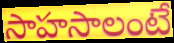
సాహసాలంటే